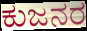
ಕುಜನರ